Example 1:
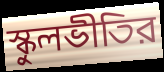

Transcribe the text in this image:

স্কুলভীতির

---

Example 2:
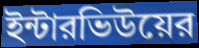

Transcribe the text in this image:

ইন্টারভিউয়ের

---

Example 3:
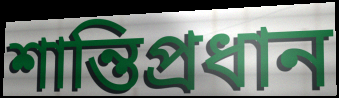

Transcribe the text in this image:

শান্তিপ্রধান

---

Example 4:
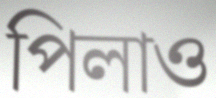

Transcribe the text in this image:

পিলাও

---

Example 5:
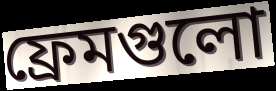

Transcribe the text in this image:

ফ্রেমগুলো